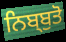
ਨਿਬ੍ਬੁਤੋ